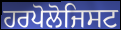
ਹਰਪੋਲੋਜਿਸਟ